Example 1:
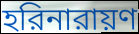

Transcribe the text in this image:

হরিনারায়ণ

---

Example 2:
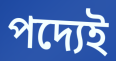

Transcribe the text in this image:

পদ্যেই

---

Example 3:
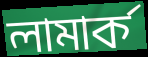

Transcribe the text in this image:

লামার্ক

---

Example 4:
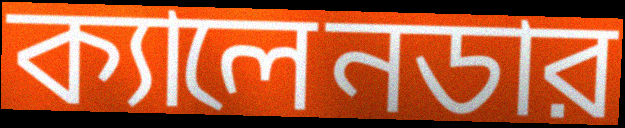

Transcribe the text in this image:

ক্যালেনডার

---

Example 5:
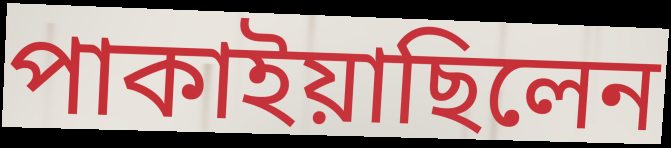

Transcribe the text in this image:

পাকাইয়াছিলেন